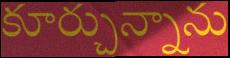
కూర్చున్నాను